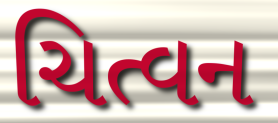
ચિત્વન